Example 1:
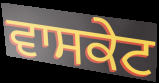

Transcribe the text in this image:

ਵਾਸਕੇਟ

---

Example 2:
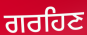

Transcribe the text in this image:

ਗਰਹਿਣ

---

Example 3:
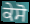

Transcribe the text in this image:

ਕੇਸੋ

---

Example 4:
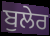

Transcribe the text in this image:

ਬੁਲੇਰ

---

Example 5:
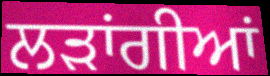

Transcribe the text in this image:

ਲੜਾਂਗੀਆਂ